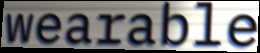
wearable